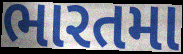
ભારતમા